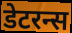
डेटरन्स